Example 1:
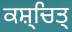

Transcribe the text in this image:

ਕਸ਼੍ਚਿਤ੍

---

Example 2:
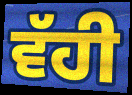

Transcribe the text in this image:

ਵੱਹੀ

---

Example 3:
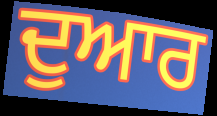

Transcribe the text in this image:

ਦੁਆਰ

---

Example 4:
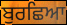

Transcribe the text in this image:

ਬੁਰਛਿਆ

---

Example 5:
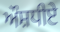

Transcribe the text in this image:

ਔਸ਼ਧੀਏ